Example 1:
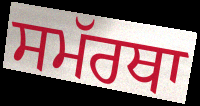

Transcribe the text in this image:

ਸਮੱਰਥਾ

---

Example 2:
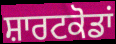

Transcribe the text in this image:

ਸ਼ਾਰਟਕੋਡਾਂ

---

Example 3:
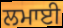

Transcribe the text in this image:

ਲਮਾਈ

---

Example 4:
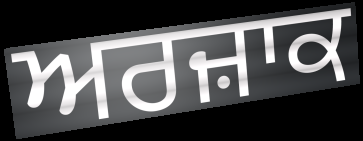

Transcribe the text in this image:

ਅਰਜ਼ਾਕ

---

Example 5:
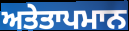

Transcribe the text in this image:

ਅਤੇਤਾਪਮਾਨ